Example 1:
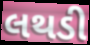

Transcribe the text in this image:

લથડી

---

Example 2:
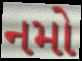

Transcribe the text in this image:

નમો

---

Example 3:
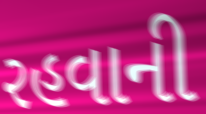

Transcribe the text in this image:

રહવાની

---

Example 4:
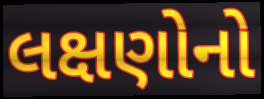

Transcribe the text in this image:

લક્ષણોનો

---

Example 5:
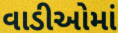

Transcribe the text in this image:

વાડીઓમાં